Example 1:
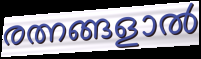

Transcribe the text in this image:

രത്നങ്ങളാൽ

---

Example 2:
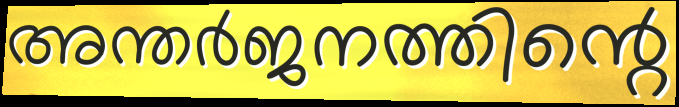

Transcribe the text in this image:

അന്തർജനത്തിന്റെ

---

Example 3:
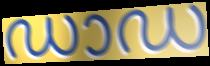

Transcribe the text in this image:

ഡാഡ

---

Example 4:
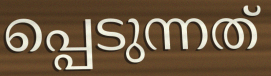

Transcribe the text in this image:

പ്പെടുന്നത്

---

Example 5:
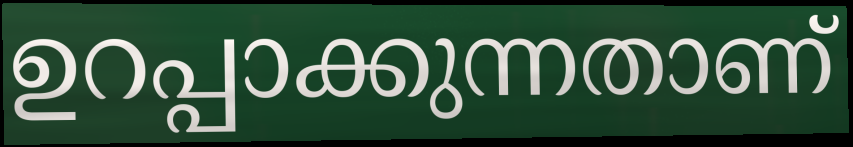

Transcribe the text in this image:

ഉറപ്പാക്കുന്നതാണ്